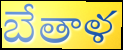
బేతాళ